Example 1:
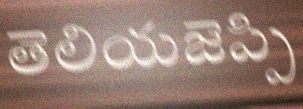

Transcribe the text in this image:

తెలియజెప్పి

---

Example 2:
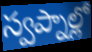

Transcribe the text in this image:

స్వప్నాల్లో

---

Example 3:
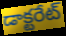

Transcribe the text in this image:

డాక్టరేట్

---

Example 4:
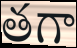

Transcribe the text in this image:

తగా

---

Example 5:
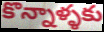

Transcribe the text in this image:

కొన్నాళ్ళకు